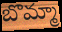
బొమ్మా